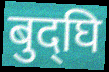
बुद्घि